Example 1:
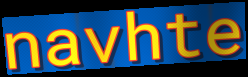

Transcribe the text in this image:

navhte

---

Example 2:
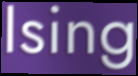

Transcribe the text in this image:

Ising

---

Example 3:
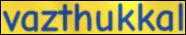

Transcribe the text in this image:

vazthukkal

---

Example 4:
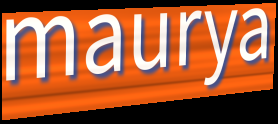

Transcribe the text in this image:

maurya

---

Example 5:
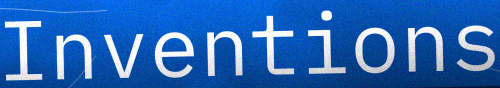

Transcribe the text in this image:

Inventions